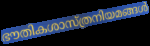
ഭൗതികശാസ്ത്രനിയമങ്ങൾ